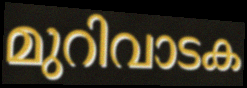
മുറിവാടക